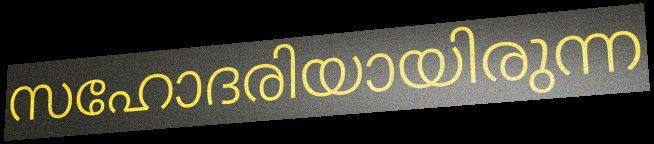
സഹോദരിയായിരുന്ന